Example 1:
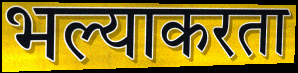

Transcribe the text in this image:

भल्याकरता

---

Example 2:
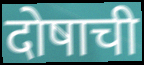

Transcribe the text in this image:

दोषाची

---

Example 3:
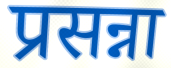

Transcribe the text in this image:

प्रसन्ना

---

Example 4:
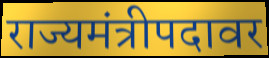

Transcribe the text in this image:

राज्यमंत्रीपदावर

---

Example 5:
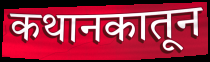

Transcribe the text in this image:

कथानकातून